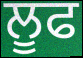
ਲੂਫ